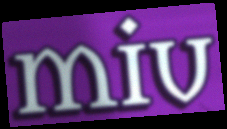
miu